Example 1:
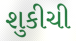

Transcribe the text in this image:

શુકીચી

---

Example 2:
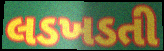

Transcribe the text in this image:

લડખડતી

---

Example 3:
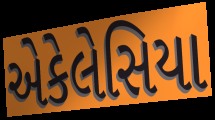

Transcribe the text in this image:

એકેલેસિયા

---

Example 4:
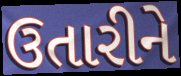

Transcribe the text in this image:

ઉતારીને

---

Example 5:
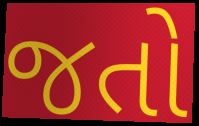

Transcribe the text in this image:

જતો